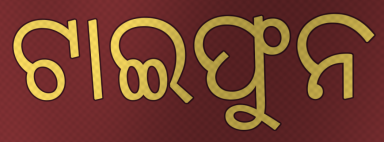
ଟାଇଫୁନ